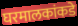
घरमालकांकडे